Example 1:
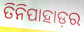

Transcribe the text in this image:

ତିନିପାହାଡ଼ର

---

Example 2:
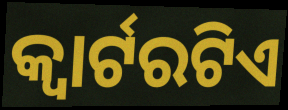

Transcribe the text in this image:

କ୍ୱାର୍ଟରଟିଏ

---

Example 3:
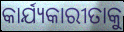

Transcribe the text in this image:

କାର୍ଯ୍ୟକାରୀତାକୁ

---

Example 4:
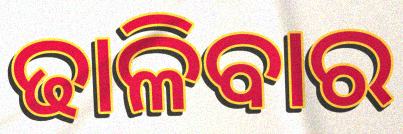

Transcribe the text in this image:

ଢାଳିବାର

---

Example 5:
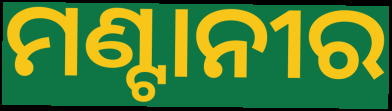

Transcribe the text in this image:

ମଣ୍ଟାନୀର